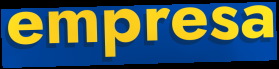
empresa